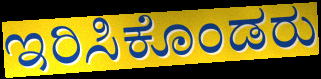
ಇರಿಸಿಕೊಂಡರು